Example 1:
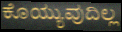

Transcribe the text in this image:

ಕೊಯ್ಯುವುದಿಲ್ಲ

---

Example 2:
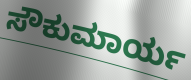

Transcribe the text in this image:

ಸೌಕುಮಾರ್ಯ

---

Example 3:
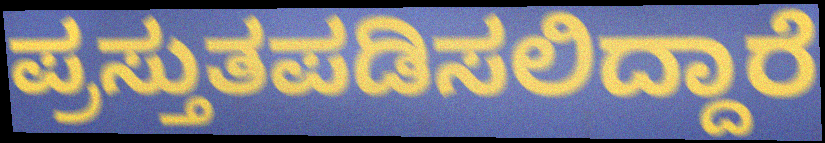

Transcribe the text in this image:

ಪ್ರಸ್ತುತಪಡಿಸಲಿದ್ದಾರೆ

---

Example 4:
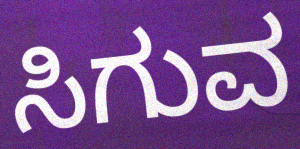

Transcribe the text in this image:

ಸಿಗುವ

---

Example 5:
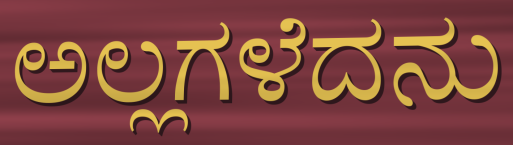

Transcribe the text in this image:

ಅಲ್ಲಗಳೆದನು